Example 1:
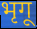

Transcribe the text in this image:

भृगू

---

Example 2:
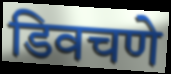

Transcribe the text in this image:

डिवचणे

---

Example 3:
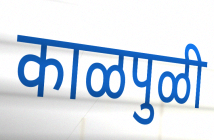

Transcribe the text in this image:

काळपुळी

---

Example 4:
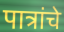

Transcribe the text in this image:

पात्रांचे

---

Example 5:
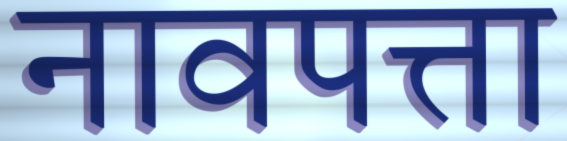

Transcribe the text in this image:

नावपत्ता